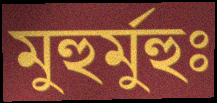
মুহুর্মুহুঃ